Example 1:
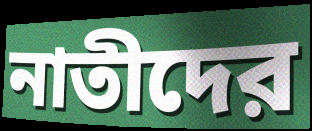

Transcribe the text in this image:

নাতীদের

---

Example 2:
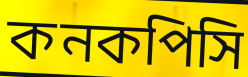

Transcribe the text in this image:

কনকপিসি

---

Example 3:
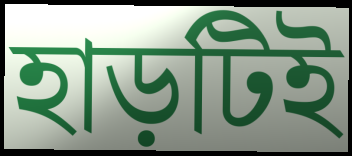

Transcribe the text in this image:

হাড়টিই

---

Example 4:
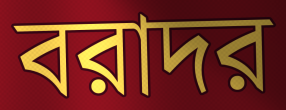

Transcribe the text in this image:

বরাদর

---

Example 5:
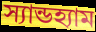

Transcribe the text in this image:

স্যান্ডহ্যাম